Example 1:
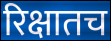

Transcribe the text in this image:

रिक्षातच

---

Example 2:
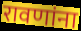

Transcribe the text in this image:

रावणांना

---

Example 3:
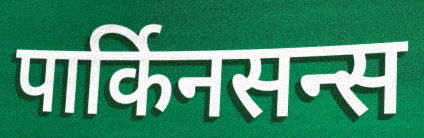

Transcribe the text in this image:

पार्किनसन्स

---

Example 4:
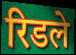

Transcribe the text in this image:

रिडले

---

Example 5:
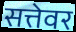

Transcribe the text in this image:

सत्तेवर